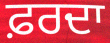
ਫ਼ਰਦਾ